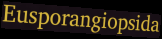
Eusporangiopsida